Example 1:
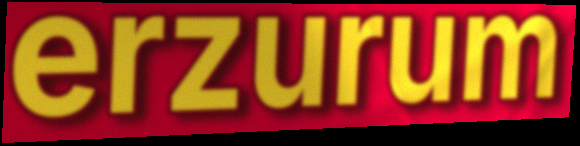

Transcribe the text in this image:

erzurum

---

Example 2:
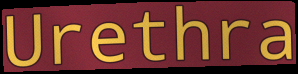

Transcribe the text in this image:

Urethra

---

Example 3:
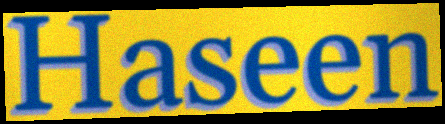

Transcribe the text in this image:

Haseen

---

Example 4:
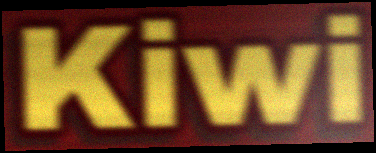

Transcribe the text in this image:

Kiwi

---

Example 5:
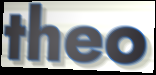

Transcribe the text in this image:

theo